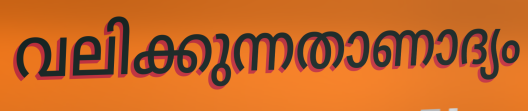
വലിക്കുന്നതാണാദ്യം